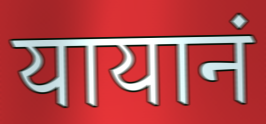
यायानं